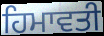
ਹਿਮਾਵਤੀ